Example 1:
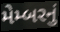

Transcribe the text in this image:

મેમ્બરનું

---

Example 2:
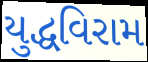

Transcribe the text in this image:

યુદ્ધવિરામ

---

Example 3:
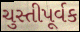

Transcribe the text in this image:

ચુસ્તીપૂર્વક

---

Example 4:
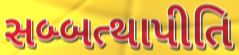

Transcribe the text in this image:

સબ્બત્થાપીતિ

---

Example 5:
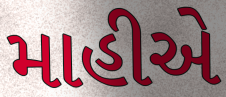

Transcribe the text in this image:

માહીએ